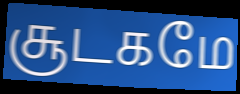
சூடகமே